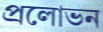
প্রলোভন